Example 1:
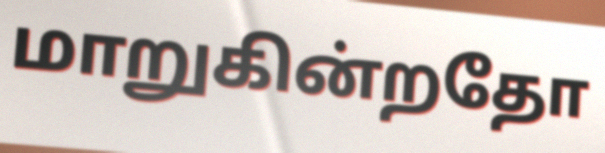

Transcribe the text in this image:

மாறுகின்றதோ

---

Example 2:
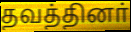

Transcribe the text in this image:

தவத்தினர்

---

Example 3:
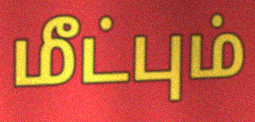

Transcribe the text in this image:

மீட்பும்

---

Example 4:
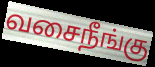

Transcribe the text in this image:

வசைநீங்கு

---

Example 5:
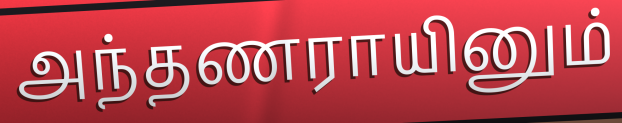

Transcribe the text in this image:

அந்தணராயினும்